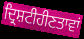
ਦ੍ਰਿਸ਼ਟੀਹੀਣਤਾਵਾਂ